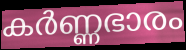
കർണ്ണഭാരം